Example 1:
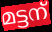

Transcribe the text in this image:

മട്ടന്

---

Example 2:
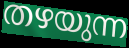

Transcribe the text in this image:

തഴയുന്ന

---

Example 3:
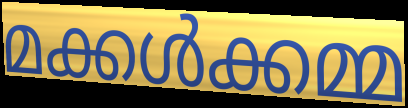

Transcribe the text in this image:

മക്കൾക്കമ്മ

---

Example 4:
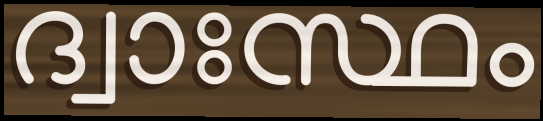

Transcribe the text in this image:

ദ്വാഃസ്ഥം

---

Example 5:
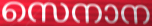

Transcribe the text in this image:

സെനാന